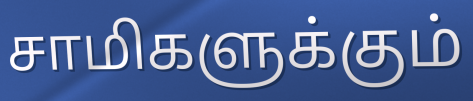
சாமிகளுக்கும்